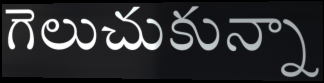
గెలుచుకున్నా